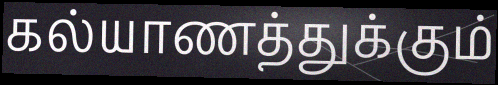
கல்யாணத்துக்கும்